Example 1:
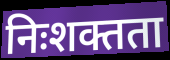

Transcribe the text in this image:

निःशक्तता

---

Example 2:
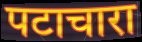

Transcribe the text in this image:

पटाचारा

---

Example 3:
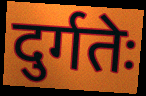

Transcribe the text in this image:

दुर्गतेः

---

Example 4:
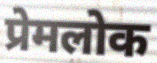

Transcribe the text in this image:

प्रेमलोक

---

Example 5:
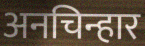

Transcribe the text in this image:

अनचिन्हार